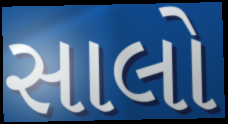
સાલો